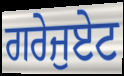
ਗਰੇਜੁਏਟ